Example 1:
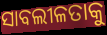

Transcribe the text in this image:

ସାବଲୀଳତାକୁ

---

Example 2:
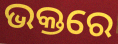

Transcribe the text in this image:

ଭକ୍ତରେ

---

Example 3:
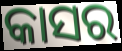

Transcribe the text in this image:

କାସର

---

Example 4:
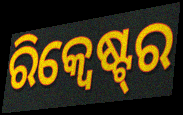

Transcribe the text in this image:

ରିକ୍ୱେଷ୍ଟ୍‌ର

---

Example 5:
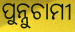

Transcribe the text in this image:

ପୁନ୍ନୁଚାମୀ